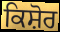
ਕਿਸ਼ੋਰ